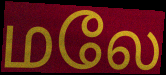
மலே